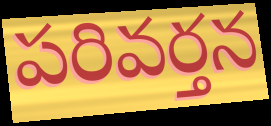
పరివర్తన